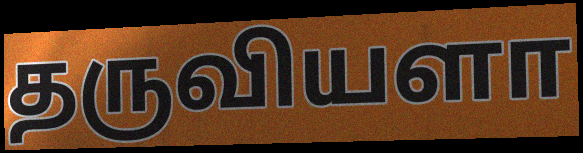
தருவியளா